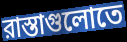
রাস্তাগুলোতে